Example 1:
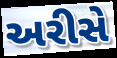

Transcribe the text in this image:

અરીસે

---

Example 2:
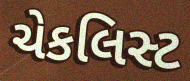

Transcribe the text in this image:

ચેકલિસ્ટ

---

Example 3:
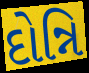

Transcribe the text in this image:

દોન્નિ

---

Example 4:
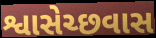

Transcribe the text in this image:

શ્વાસેચ્છવાસ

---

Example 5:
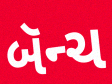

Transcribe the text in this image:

બૅન્ચ